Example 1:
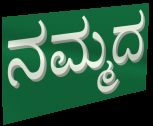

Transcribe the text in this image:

ನಮ್ಮದ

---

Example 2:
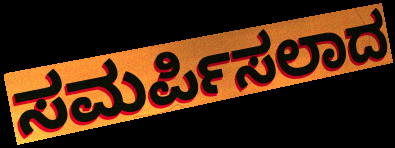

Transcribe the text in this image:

ಸಮರ್ಪಿಸಲಾದ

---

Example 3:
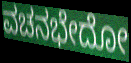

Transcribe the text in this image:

ವಚನಭೇದೋ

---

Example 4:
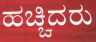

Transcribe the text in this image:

ಹಚ್ಚಿದರು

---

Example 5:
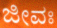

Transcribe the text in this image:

ಜೀವಃ